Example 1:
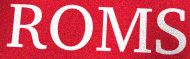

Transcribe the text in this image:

ROMS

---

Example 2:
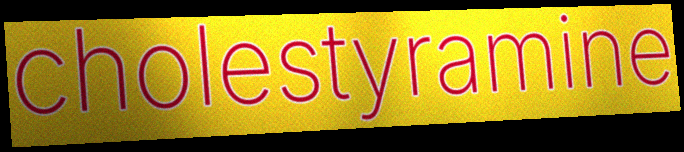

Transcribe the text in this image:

cholestyramine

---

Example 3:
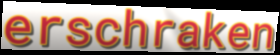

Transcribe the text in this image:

erschraken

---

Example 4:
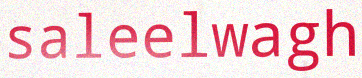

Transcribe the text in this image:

saleelwagh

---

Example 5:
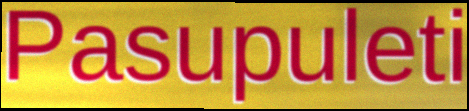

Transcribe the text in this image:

Pasupuleti